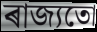
ৰাজ্যতো